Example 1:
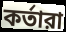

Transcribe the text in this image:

কর্তারা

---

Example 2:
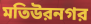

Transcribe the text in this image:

মতিউরনগর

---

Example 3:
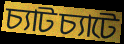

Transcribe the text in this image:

চ্যাটচ্যাটে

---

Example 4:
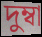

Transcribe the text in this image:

দুম্বা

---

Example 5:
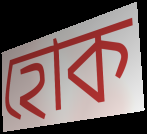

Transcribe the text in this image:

হোক